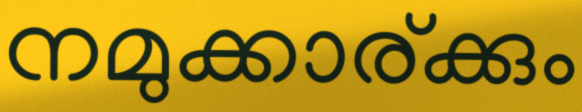
നമുക്കാര്ക്കും